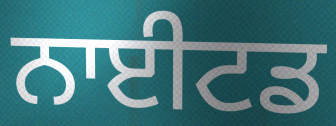
ਨਾਈਟਡ